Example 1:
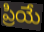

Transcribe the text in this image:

ప్రియే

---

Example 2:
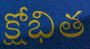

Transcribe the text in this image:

క్షోభిత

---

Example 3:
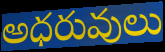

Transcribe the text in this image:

అధరువులు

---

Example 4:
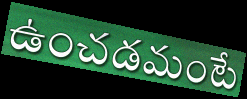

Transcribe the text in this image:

ఉంచడమంటే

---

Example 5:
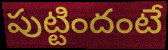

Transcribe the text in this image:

పుట్టిందంటే